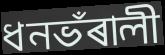
ধনভঁৰালী